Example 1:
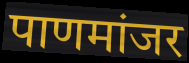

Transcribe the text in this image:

पाणमांजर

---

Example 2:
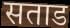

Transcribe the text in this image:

सताड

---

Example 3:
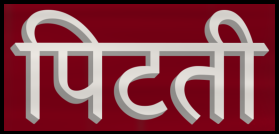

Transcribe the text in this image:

पिटती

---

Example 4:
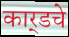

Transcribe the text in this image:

कार्डचे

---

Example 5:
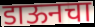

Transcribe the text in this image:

डाऊनचा